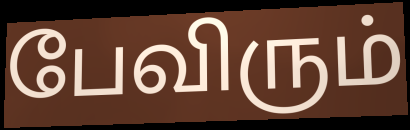
பேவிரும்